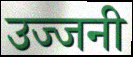
उज्जनी